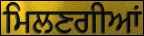
ਮਿਲਣਗੀਆਂ